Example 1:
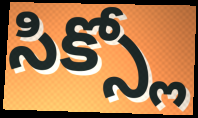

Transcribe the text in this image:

సిక్స్లో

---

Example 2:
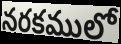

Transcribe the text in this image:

నరకములో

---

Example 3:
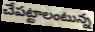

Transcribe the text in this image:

చేపట్టాలంటున్న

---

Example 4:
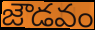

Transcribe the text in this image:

జౌడవం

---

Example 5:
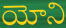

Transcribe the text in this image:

యోని